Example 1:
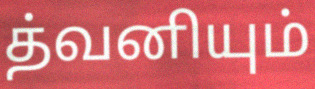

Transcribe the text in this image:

த்வனியும்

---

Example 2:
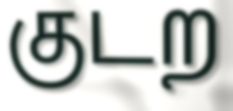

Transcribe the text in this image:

குடற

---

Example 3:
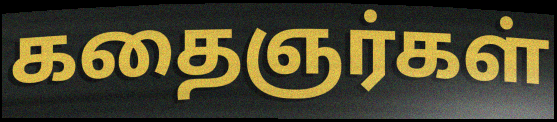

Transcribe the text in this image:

கதைஞர்கள்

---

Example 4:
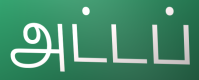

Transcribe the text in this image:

அட்டப்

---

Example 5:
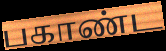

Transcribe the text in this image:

பகாண்ட